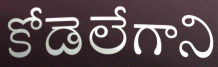
కోడెలేగాని